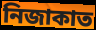
নিজাকাত